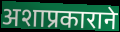
अशाप्रकाराने